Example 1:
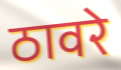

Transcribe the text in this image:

ठावरे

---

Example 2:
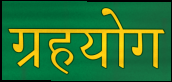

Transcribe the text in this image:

ग्रहयोग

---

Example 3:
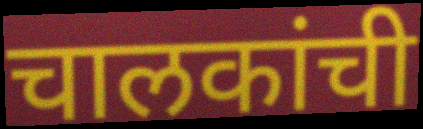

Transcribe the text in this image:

चालकांची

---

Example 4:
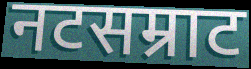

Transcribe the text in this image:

नटसम्राट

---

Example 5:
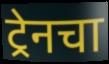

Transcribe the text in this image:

ट्रेनचा